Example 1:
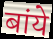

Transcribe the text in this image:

बांये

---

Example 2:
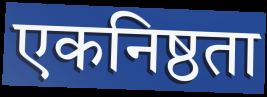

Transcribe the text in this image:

एकनिष्ठता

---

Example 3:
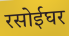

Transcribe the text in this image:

रसोईघर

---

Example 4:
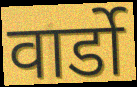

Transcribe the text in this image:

वार्डो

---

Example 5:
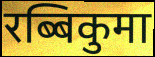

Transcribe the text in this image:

रब्बिकुमा